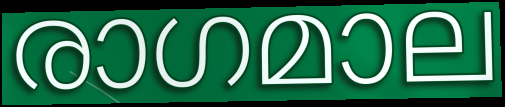
രാഗമാല